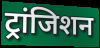
ट्रांजिशन